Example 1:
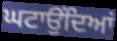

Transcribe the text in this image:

ਘਟਾਉਂਦਿਆਂ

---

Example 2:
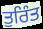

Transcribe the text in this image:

ਤੁਰਿੰਤ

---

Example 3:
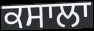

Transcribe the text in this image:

ਕਸਾਲਾ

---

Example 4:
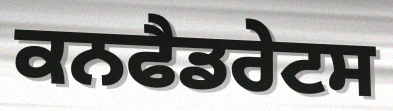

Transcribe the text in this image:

ਕਨਫੈਡਰੇਟਸ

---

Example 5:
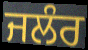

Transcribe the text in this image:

ਜਲੰਰ